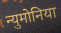
न्युमोनिया